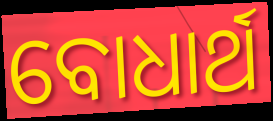
ବୋଧାର୍ଥ